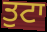
ਤੁਟਾ